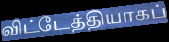
விட்டேத்தியாகப்